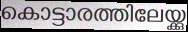
കൊട്ടാരത്തിലേയ്ക്കു